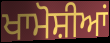
ਖਾਮੋਸ਼ੀਆਂ